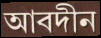
আবদীন